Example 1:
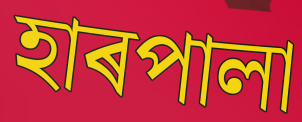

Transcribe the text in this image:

হাৰপালা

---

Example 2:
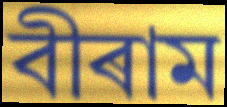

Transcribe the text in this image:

বীৰাম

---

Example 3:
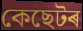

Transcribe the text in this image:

কেছেটৰ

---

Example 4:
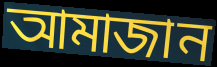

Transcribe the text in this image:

আমাজান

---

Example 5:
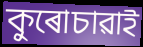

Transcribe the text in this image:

কুৰোচাৱাই